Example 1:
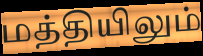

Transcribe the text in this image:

மத்தியிலும்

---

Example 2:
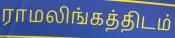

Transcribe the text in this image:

ராமலிங்கத்திடம்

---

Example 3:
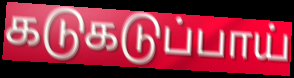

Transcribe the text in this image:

கடுகடுப்பாய்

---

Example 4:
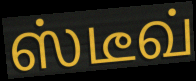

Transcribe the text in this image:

ஸ்டீவ்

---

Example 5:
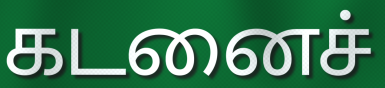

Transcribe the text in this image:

கடனைச்